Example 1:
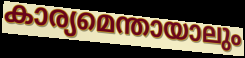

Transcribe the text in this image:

കാര്യമെന്തായാലും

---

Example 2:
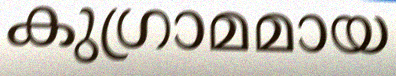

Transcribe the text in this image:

കുഗ്രാമമായ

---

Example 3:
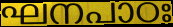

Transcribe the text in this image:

ഘനപാഠഃ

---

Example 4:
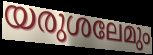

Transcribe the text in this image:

യരുശലേമും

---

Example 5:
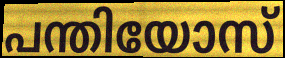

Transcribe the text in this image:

പന്തിയോസ്